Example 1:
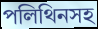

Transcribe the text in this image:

পলিথিনসহ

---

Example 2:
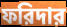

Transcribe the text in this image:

ফরিদার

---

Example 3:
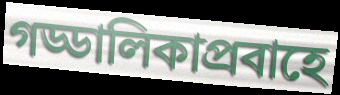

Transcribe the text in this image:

গড্ডালিকাপ্রবাহে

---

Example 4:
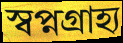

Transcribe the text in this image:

স্বপ্নগ্রাহ্য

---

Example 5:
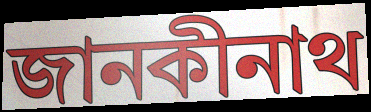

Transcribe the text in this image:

জানকীনাথ